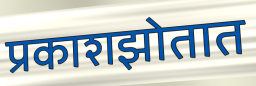
प्रकाशझोतात